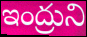
ఇంద్రుని